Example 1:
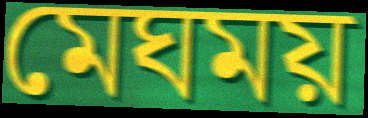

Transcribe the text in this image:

মেঘময়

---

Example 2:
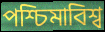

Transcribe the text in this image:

পশ্চিমাবিশ্ব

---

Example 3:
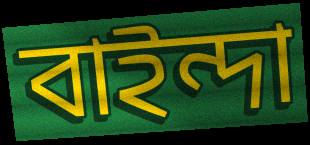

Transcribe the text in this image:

বাইন্দা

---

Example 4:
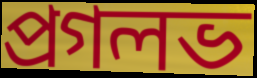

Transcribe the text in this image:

প্রগলভ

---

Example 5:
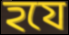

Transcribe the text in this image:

হযে